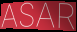
ASAR